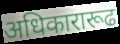
अधिकारारूढ